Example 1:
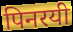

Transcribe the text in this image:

पिनरयी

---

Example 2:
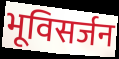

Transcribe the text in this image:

भूविसर्जन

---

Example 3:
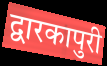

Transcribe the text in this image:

द्वारकापुरी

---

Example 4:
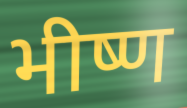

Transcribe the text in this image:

भीष्ण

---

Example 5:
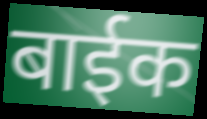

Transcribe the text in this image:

बाईक